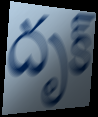
దృక్